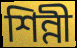
শিন্নী